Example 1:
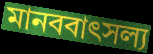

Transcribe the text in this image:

মানববাৎসল্য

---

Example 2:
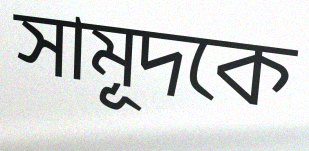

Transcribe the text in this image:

সামূদকে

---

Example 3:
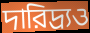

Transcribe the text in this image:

দারিদ্র্যও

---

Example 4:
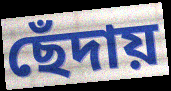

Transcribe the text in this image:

ছেঁদায়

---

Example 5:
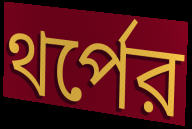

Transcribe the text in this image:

থর্পের